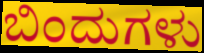
ಬಿಂದುಗಳು